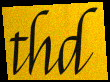
thd